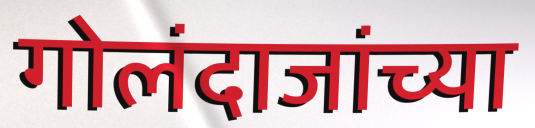
गोलंदाजांच्या